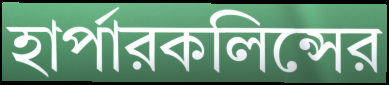
হার্পারকলিন্সের